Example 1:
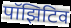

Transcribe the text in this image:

पॉझिटिव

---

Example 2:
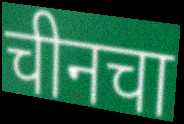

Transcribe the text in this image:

चीनचा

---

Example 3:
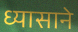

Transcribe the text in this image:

ध्यासाने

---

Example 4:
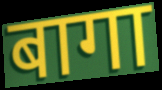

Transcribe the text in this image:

बागा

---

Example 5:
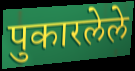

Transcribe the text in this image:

पुकारलेले